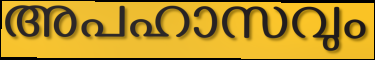
അപഹാസവും